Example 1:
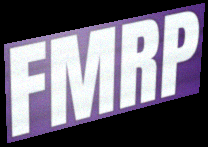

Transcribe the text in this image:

FMRP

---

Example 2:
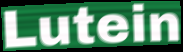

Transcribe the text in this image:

Lutein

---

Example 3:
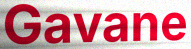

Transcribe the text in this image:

Gavane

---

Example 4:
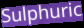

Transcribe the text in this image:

Sulphuric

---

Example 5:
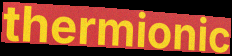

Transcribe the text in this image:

thermionic